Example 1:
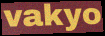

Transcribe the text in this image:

vakyo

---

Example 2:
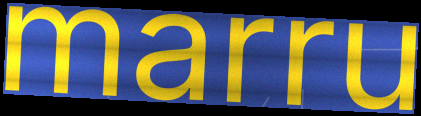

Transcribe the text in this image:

marru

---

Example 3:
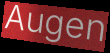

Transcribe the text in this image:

Augen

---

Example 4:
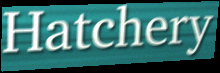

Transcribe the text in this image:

Hatchery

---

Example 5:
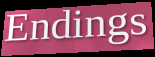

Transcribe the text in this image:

Endings